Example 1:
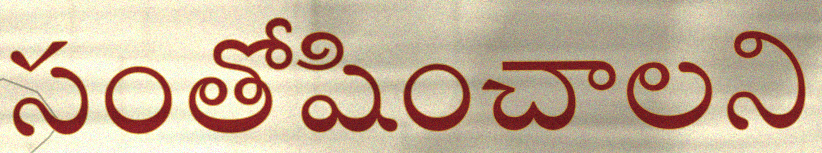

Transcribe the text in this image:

సంతోషించాలని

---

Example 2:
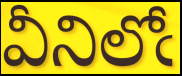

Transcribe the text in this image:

వీనిలోఁ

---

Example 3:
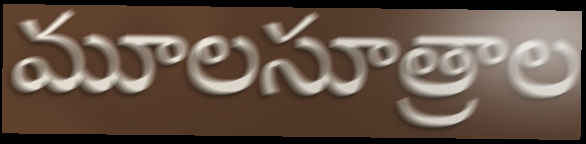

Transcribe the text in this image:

మూలసూత్రాల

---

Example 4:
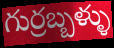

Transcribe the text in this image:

గుర్రబ్బళ్ళు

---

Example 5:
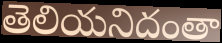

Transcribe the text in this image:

తెలియనిదంతా